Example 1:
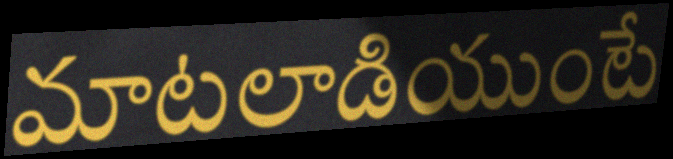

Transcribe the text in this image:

మాటలాడియుంటే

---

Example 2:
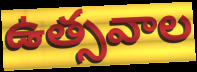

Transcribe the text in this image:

ఉత్సవాల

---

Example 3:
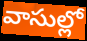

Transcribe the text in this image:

వాసుల్లో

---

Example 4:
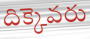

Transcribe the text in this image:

దిక్కెవరు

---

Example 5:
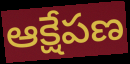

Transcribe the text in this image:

ఆక్షేపణ